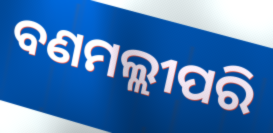
ବଣମଲ୍ଲୀପରି